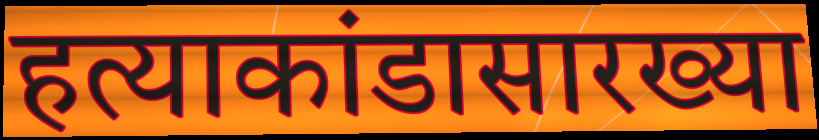
हत्याकांडासारख्या